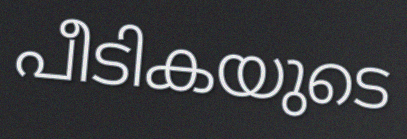
പീടികയുടെ